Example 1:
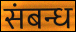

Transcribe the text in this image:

संबन्ध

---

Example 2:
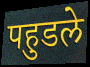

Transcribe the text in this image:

पहुडले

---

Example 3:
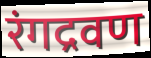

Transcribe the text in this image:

रंगद्रवण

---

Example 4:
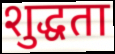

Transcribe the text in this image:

शुद्धता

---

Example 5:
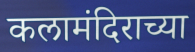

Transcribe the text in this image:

कलामंदिराच्या